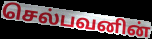
செல்பவனின்